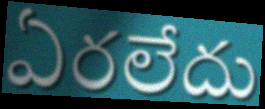
ఏరలేదు